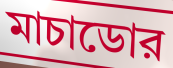
মাচাডোর